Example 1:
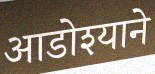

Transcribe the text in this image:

आडोश्याने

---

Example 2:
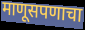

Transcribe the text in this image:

माणूसपणाचा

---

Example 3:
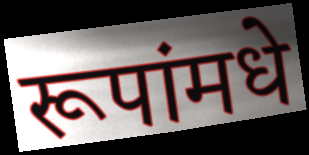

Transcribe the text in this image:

रूपांमधे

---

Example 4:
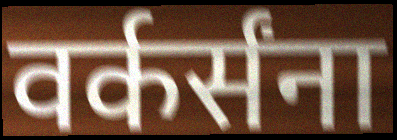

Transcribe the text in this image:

वर्कर्संना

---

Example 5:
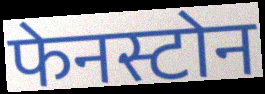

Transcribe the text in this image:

फेनस्टोन